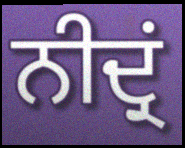
ਨੀਦ੍ਰਂ